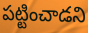
పట్టించాడని